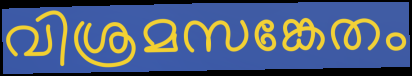
വിശ്രമസങ്കേതം